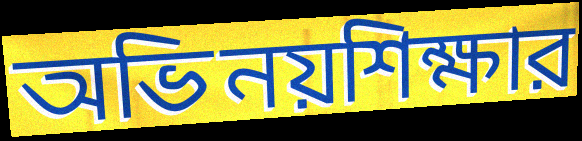
অভিনয়শিক্ষার